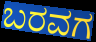
ಬರವಗ